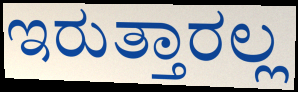
ಇರುತ್ತಾರಲ್ಲ